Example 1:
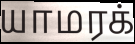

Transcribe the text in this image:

யாமரக்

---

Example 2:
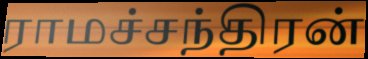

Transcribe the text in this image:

ராமச்சந்திரன்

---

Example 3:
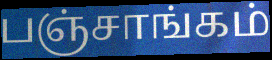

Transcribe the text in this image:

பஞ்சாங்கம்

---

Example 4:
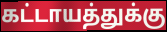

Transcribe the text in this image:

கட்டாயத்துக்கு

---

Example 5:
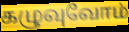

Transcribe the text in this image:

கழுவுவோம்